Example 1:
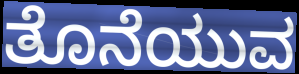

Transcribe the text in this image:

ತೊನೆಯುವ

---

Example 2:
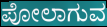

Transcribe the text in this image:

ಪೋಲಾಗುವ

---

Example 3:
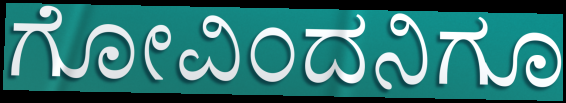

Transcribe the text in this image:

ಗೋವಿಂದನಿಗೂ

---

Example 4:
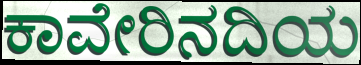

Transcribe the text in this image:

ಕಾವೇರಿನದಿಯ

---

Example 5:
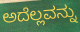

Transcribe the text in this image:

ಅದೆಲ್ಲವನ್ನು